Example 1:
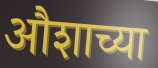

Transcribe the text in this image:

औशाच्या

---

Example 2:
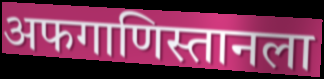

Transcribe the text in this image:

अफगाणिस्तानला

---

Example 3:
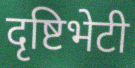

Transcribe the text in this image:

दृष्टिभेटी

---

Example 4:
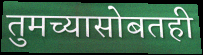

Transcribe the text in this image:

तुमच्यासोबतही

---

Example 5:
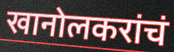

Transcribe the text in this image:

खानोलकरांचं